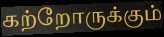
கற்றோருக்கும்